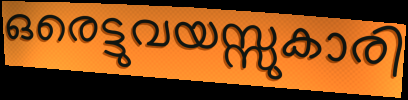
ഒരെട്ടുവയസ്സുകാരി